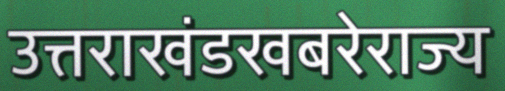
उत्तराखंडखबरेराज्य